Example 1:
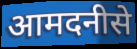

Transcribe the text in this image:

आमदनीसे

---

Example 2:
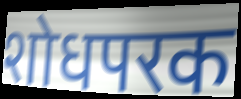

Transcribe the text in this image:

शोधपरक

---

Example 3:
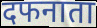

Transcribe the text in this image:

दफनाता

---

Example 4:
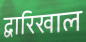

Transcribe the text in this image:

द्वारिखाल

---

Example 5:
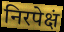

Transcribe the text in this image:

निरपेक्षं